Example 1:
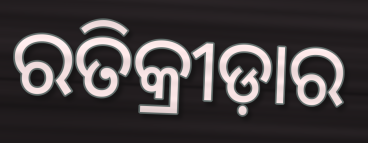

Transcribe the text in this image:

ରତିକ୍ରୀଡ଼ାର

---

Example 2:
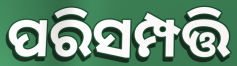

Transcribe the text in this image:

ପରିସମ୍ପତ୍ତି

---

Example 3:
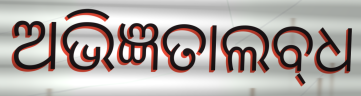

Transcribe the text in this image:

ଅଭିଜ୍ଞତାଲବ୍‌ଧ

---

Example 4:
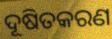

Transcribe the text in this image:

ଦୂଷିତକରଣ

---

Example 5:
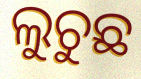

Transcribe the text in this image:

ଲୁଚୁଛ